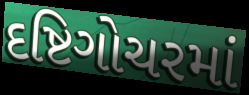
દષ્ટિગોચરમાં